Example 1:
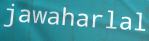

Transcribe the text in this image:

jawaharlal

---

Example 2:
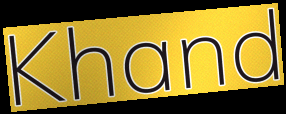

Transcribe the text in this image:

Khand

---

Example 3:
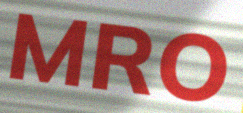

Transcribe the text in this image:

MRO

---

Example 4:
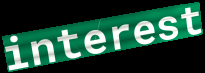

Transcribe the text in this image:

interest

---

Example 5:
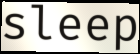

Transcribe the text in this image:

sleep